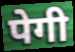
पेगी